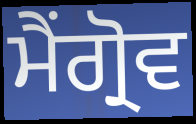
ਮੈਂਗ੍ਰੋਵ